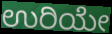
ಉರಿಯೇ